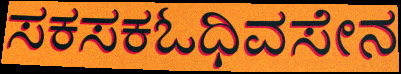
ಸಕಸಕಓಧಿವಸೇನ